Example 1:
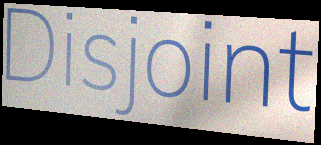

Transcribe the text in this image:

Disjoint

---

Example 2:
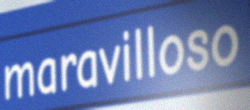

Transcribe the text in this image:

maravilloso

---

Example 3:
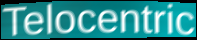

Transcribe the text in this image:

Telocentric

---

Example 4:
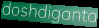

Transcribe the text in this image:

doshdiganta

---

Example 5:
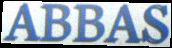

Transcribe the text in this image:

ABBAS